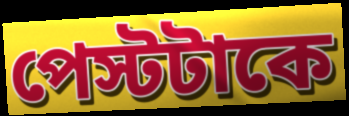
পেস্টটাকে